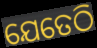
ଯେତେଠି